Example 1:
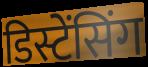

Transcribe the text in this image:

डिस्टेंसिंग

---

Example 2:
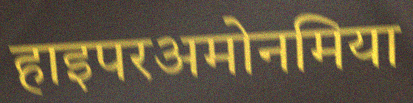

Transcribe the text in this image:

हाइपरअमोनमिया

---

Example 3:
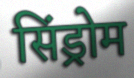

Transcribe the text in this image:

सिंड्रोम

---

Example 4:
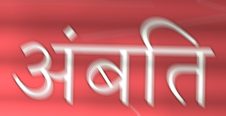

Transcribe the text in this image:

अंबति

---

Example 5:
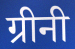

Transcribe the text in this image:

ग्रीनी